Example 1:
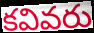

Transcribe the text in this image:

కవివరు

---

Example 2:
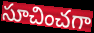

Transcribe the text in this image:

సూచించగా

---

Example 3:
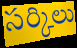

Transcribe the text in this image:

సర్కిలు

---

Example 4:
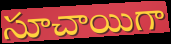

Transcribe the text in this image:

సూచాయిగా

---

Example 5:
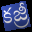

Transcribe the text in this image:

కజ్రీ